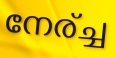
നേര്ച്ച